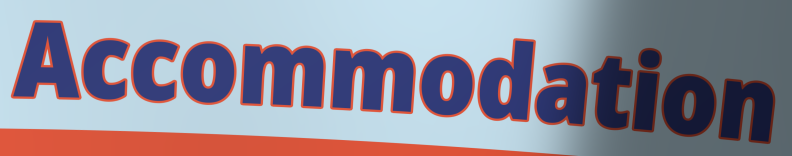
Accommodation